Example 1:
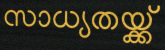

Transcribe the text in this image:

സാധ്യതയ്ക്ക്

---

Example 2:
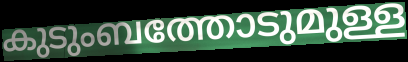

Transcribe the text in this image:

കുടുംബത്തോടുമുള്ള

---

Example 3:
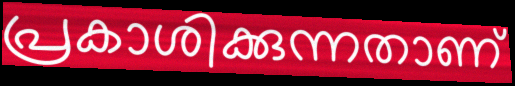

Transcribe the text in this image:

പ്രകാശിക്കുന്നതാണ്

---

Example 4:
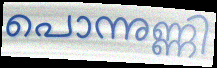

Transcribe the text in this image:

പൊന്നുണ്ണി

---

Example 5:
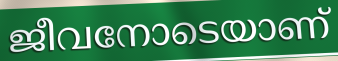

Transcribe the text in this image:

ജീവനോടെയാണ്